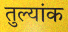
तुल्यांक